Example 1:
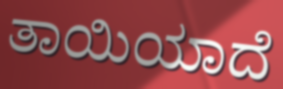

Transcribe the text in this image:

ತಾಯಿಯಾದೆ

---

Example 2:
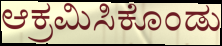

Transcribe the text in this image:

ಆಕ್ರಮಿಸಿಕೊಂಡು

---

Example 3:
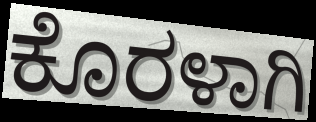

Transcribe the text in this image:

ಕೊರಳಾಗಿ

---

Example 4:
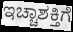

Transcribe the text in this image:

ಇಚ್ಚಾಶಕ್ತಿಗೆ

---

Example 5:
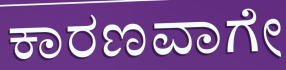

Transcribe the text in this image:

ಕಾರಣವಾಗೇ